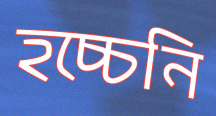
হচ্চেনি